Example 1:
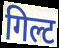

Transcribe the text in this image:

गिल्ट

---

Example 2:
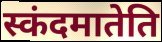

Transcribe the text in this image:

स्कंदमातेति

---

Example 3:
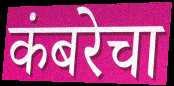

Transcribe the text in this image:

कंबरेचा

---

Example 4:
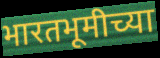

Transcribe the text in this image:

भारतभूमीच्या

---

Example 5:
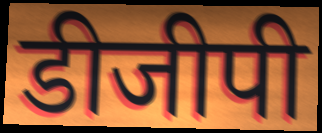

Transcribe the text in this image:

डीजीपी